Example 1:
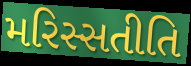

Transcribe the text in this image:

મરિસ્સતીતિ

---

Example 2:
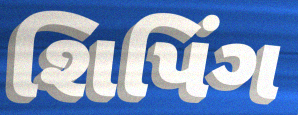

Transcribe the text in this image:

શિપિંગ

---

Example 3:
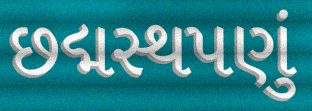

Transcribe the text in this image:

છદ્મસ્થપણું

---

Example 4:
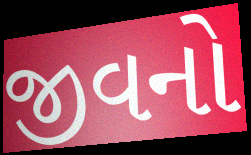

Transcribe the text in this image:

જીવનો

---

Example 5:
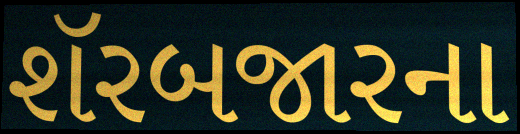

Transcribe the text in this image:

શૅરબજારના